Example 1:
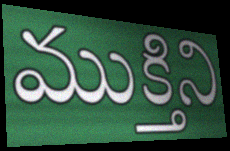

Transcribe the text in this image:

ముక్తిని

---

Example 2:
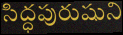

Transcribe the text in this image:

సిద్ధపురుషుని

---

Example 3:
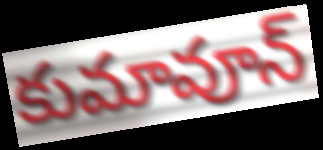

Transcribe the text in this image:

కుమావూన్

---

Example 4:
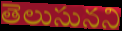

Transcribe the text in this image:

తెలుసునని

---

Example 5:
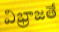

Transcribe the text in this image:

విభ్రాజతే